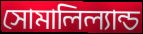
সোমালিল্যান্ড